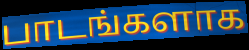
பாடங்களாக